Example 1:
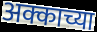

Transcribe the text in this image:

अक्काच्या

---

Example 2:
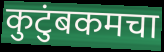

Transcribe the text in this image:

कुटुंबकमचा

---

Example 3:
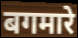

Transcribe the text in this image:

बगमारे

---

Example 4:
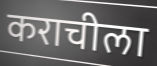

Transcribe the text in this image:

कराचीला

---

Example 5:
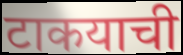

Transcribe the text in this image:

टाकयाची